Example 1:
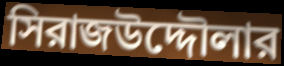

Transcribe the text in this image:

সিরাজউদ্দৌলার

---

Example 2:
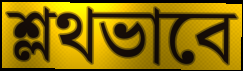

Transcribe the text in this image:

শ্লথভাবে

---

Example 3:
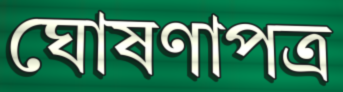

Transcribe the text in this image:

ঘোষণাপত্র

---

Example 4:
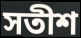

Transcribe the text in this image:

সতীশ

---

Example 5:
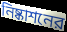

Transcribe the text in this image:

নিষ্কাশনের